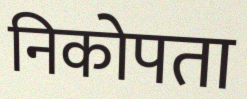
निकोपता